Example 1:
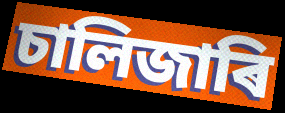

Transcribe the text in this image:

চালিজাৰি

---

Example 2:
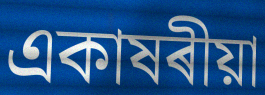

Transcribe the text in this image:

একাষৰীয়া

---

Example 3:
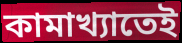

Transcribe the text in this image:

কামাখ্যাতেই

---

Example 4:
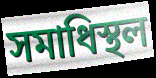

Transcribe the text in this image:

সমাধিস্থল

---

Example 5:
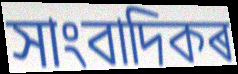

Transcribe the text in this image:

সাংবাদিকৰ